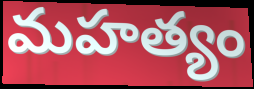
మహత్యం